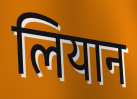
लियान